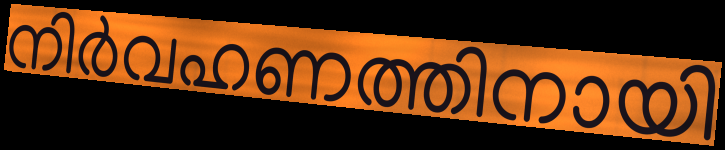
നിർവഹണത്തിനായി